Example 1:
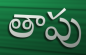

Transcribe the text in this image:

తాపు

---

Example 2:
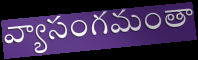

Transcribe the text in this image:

వ్యాసంగమంతా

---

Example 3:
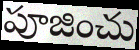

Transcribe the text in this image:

పూజించు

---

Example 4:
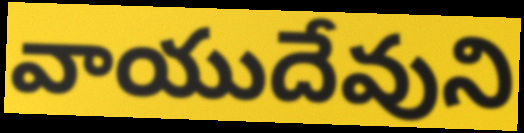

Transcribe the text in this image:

వాయుదేవుని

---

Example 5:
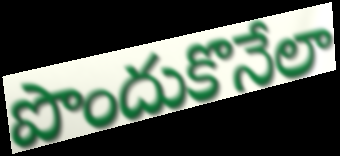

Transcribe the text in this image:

పొందుకొనేలా